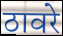
ठावरे